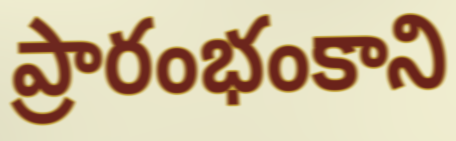
ప్రారంభంకాని